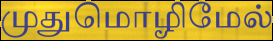
முதுமொழிமேல்